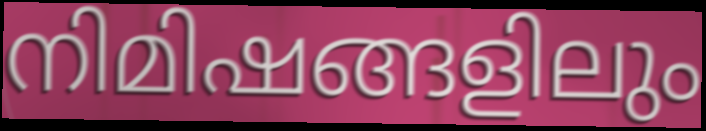
നിമിഷങ്ങളിലും